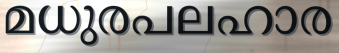
മധുരപലഹാര